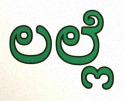
ಲಲ್ಲೆ